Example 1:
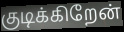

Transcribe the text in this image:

குடிக்கிறேன்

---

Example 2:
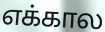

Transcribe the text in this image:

எக்கால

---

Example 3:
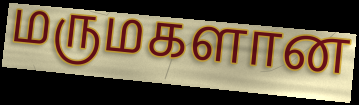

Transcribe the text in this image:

மருமகளான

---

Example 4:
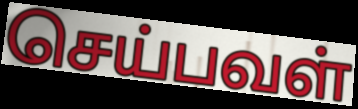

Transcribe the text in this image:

செய்பவள்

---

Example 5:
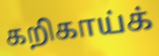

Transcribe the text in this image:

கறிகாய்க்